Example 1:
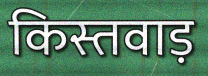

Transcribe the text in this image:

किस्तवाड़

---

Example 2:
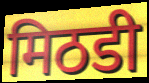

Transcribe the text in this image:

मिठडी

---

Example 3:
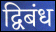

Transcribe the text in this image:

द्विबंध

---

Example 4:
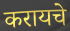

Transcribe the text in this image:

करायचे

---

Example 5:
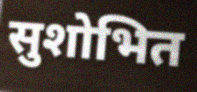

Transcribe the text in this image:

सुशोभित